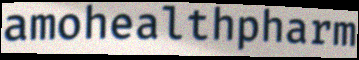
amohealthpharm